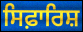
ਸਿਫ਼ਾਰਿਸ਼